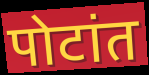
पोटांत